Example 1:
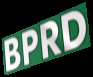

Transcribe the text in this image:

BPRD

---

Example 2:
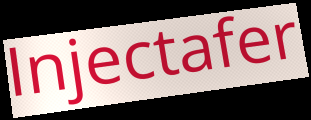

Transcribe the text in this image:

Injectafer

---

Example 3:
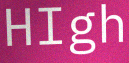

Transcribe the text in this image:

HIgh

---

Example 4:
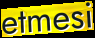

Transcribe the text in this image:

etmesi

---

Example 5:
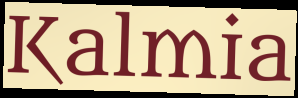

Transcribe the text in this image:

Kalmia